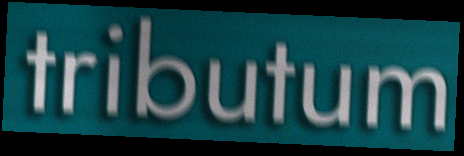
tributum